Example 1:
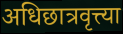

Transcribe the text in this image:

अधिछात्रवृत्त्या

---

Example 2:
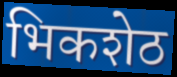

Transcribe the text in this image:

भिकशेठ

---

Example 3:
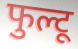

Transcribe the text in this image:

फुल्टू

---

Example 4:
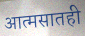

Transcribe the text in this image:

आत्मसातही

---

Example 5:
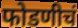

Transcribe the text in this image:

फोडणीचं